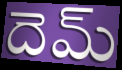
దెమ్